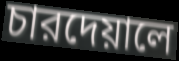
চারদেয়ালে